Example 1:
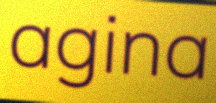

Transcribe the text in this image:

agina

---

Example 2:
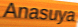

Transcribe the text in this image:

Anasuya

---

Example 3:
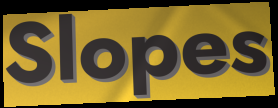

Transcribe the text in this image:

Slopes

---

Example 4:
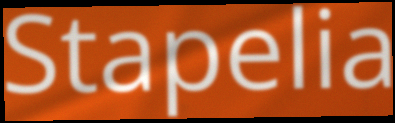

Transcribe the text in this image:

Stapelia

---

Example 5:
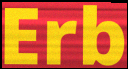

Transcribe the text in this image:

Erb